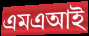
এমএআই